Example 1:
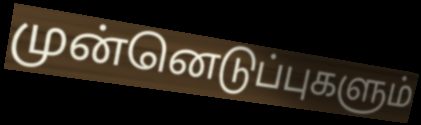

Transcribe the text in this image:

முன்னெடுப்புகளும்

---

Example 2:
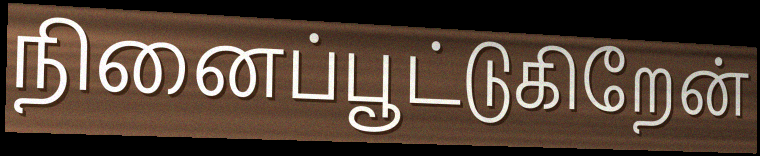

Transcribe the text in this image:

நினைப்பூட்டுகிறேன்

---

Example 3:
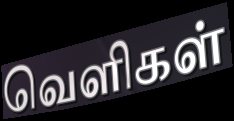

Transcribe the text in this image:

வெளிகள்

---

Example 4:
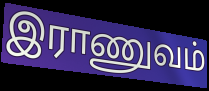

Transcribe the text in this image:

இராணுவம்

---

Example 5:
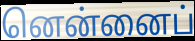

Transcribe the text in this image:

னென்னைப்